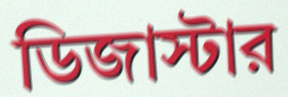
ডিজাস্টার